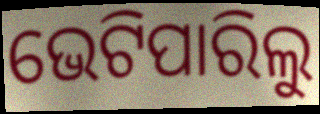
ଭେଟିପାରିଲୁ